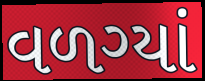
વળગ્યાં